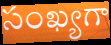
సంఖ్యగా